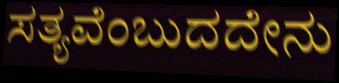
ಸತ್ಯವೆಂಬುದದೇನು